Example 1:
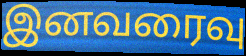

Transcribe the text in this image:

இனவரைவு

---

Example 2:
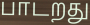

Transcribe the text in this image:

பாடறது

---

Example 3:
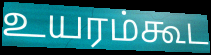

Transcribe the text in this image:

உயரம்கூட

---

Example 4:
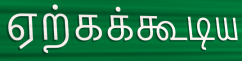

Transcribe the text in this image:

ஏற்கக்கூடிய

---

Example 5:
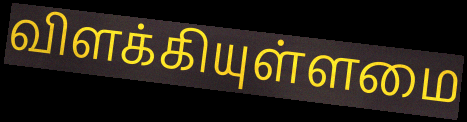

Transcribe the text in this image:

விளக்கியுள்ளமை